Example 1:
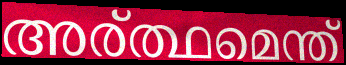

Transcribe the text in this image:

അര്ത്ഥമെന്ത്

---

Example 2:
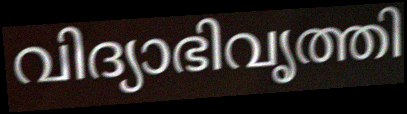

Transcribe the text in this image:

വിദ്യാഭിവൃത്തി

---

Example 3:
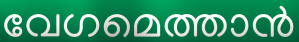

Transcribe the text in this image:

വേഗമെത്താൻ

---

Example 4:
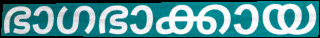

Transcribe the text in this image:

ഭാഗഭാക്കായ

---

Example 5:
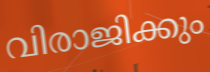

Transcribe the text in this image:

വിരാജിക്കും